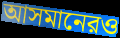
আসমানেরও